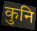
कुनि